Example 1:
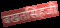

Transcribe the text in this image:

बखतसिंहजी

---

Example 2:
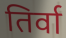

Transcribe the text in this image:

तिर्वा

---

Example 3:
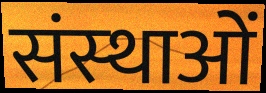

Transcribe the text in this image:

संस्‍थाओं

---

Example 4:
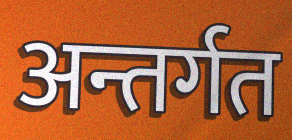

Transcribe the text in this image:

अन्‍तर्गत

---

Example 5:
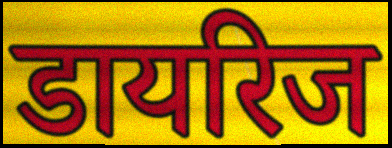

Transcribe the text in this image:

डायरिज